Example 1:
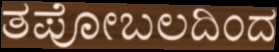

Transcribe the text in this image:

ತಪೋಬಲದಿಂದ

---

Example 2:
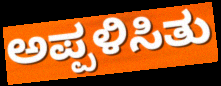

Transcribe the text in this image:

ಅಪ್ಪಳಿಸಿತು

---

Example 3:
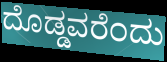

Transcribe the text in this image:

ದೊಡ್ಡವರೆಂದು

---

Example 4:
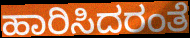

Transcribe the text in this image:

ಹಾರಿಸಿದರಂತೆ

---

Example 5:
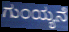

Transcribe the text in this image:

ಗುಂಯ್ಯನೆ